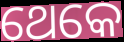
ଥେକେ